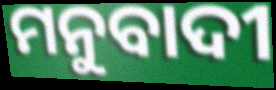
ମନୁବାଦୀ